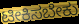
ಟೀಕಿಸಬೇಕು